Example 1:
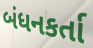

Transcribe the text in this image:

બંધનકર્તા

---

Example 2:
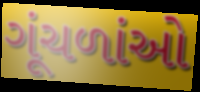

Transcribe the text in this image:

ગૂંચળાંઓ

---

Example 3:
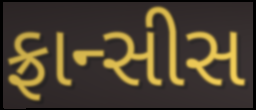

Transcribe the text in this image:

ફ્રાન્સીસ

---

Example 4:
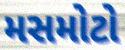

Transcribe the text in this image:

મસમોટો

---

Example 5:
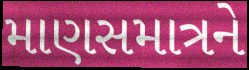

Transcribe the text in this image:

માણસમાત્રને